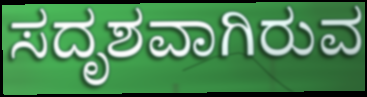
ಸದೃಶವಾಗಿರುವ